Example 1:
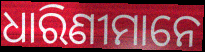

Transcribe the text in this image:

ଧାରିଣୀମାନେ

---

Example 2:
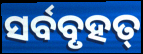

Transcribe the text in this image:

ସର୍ବବୃହତ୍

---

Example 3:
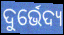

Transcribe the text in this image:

ଦୁର୍ଭେଦ୍ୟ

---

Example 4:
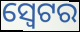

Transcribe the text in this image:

ସ୍ଵେଟର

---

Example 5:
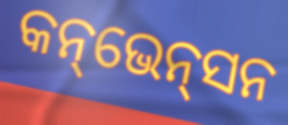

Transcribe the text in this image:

କନ୍‌ଭେନ୍‌ସନ